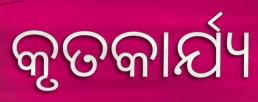
କୃତକାର୍ଯ୍ୟ